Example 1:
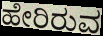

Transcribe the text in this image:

ಹೇರಿರುವ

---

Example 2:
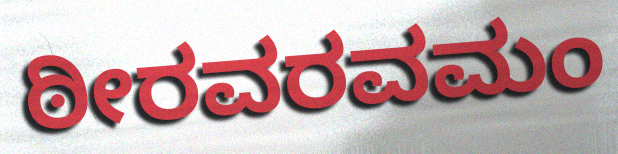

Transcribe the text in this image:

ಠೀರವರವಮಂ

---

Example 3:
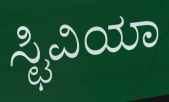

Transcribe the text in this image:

ಸ್ಟಿವಿಯಾ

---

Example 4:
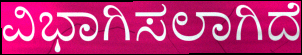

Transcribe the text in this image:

ವಿಭಾಗಿಸಲಾಗಿದೆ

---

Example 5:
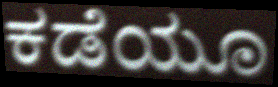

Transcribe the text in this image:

ಕಡೆಯೂ